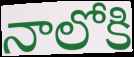
నాలోకి